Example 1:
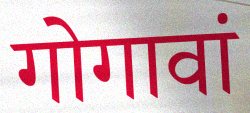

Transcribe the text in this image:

गोगावां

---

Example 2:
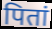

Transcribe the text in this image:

पितां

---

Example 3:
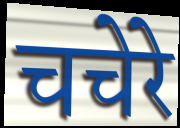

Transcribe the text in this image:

चचेरे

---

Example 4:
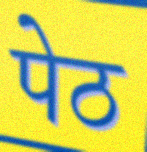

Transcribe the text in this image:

पेठ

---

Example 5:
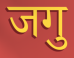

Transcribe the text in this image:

जगु